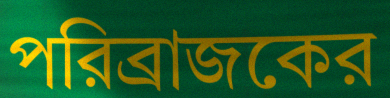
পরিব্রাজকের